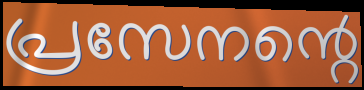
പ്രസേനന്റെ